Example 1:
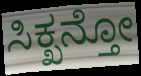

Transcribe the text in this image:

ಸಿಕ್ಖನ್ತೋ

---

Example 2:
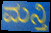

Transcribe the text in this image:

ಮನ್ತಿ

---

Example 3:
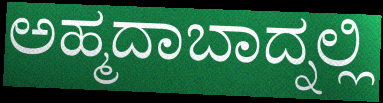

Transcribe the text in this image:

ಅಹ್ಮದಾಬಾದ್ನಲ್ಲಿ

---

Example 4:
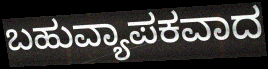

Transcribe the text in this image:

ಬಹುವ್ಯಾಪಕವಾದ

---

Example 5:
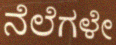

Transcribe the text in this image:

ನೆಲೆಗಳೇ